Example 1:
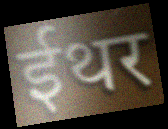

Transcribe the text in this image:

ईथर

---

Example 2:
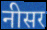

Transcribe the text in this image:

नीसर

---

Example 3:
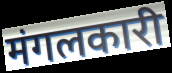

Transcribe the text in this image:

मंगलकारी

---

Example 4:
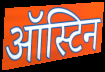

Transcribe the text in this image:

ऑस्टिन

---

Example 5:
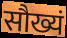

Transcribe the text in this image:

सौख्यं